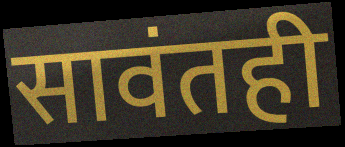
सावंतही